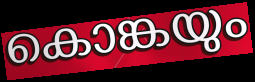
കൊങ്കയും